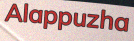
Alappuzha